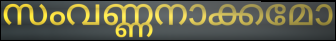
സംവണ്ണനാക്കമോ